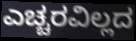
ಎಚ್ಚರವಿಲ್ಲದ